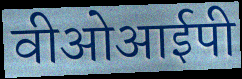
वीओआईपी